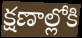
క్షణాల్లోకి